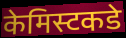
केमिस्टकडे